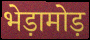
भेड़ामोड़